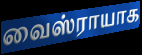
வைஸ்ராயாக